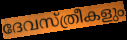
ദേവസ്ത്രീകളും